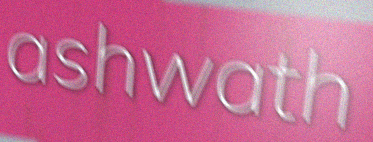
ashwath